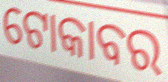
ଟୋକାବର